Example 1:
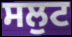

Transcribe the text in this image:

ਸਲੁਟ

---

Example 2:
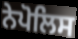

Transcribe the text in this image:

ਨੇਪੋਲਿਸ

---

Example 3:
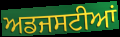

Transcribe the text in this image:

ਅਡਜਸਟੀਆਂ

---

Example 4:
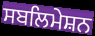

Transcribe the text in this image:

ਸਬਲਿਮੇਸ਼ਨ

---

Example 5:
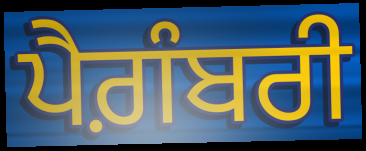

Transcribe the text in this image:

ਪੈਗ਼ੰਬਰੀ